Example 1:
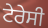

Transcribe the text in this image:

ਟੇਰੇਸੀ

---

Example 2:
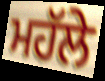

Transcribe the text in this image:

ਮਹੱਲੇ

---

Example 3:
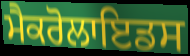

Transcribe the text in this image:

ਮੈਕਰੋਲਾਇਡਸ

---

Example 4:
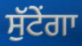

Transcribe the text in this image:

ਸੁੱਟੇਂਗਾ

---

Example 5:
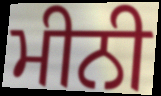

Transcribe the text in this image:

ਮੀਨੀ